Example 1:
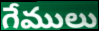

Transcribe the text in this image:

గేములు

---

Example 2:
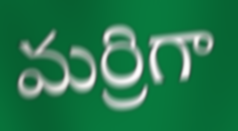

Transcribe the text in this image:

మర్రిగా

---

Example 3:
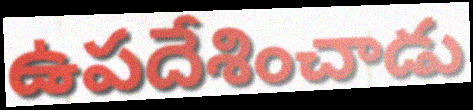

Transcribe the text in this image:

ఉపదేశించాడు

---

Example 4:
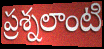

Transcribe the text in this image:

ప్రశ్నలాంటి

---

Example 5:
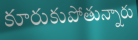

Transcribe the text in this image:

కూరుకుపోతున్నారు